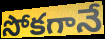
సోకగానే